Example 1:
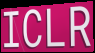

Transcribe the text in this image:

ICLR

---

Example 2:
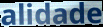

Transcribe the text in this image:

alidade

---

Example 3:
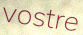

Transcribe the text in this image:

vostre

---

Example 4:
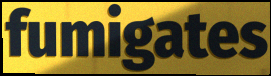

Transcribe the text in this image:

fumigates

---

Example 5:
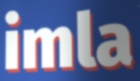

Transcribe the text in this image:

imla